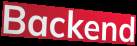
Backend